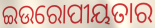
ଇଉରୋପୀୟତାର